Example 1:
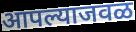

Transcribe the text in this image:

आपल्याजवळ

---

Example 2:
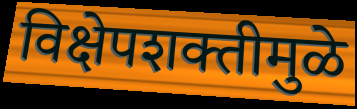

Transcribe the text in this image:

विक्षेपशक्तीमुळे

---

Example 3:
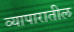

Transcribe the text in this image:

व्यापारातील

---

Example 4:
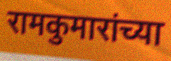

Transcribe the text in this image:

रामकुमारांच्या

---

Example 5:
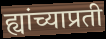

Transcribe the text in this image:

ह्यांच्याप्रती